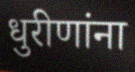
धुरीणांना